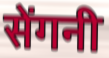
सेंगनी